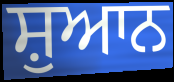
ਸ਼ੁਆਨ